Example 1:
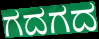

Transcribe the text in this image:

ಗದಗದ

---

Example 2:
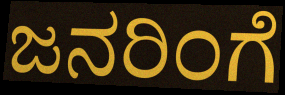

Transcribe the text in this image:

ಜನರಿಂಗೆ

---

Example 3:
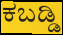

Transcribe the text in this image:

ಕಬಡ್ಡಿ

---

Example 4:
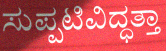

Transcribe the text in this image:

ಸುಪ್ಪಟಿವಿದ್ಧತ್ತಾ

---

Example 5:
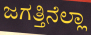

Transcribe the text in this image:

ಜಗತ್ತಿನೆಲ್ಲಾ